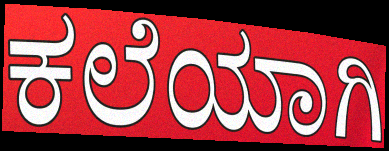
ಕಲೆಯಾಗಿ